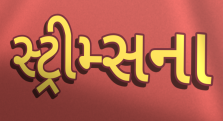
સ્ટ્રીમ્સના